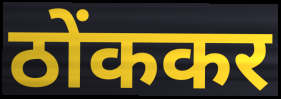
ठोंककर